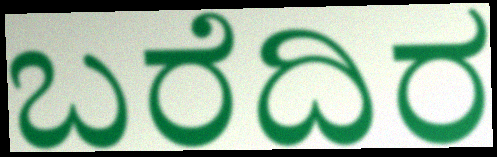
ಬರೆದಿರ